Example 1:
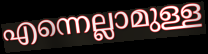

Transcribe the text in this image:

എന്നെല്ലാമുള്ള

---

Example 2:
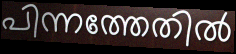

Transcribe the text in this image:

പിന്നത്തേതിൽ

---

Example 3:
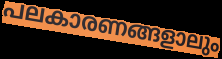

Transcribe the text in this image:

പലകാരണങ്ങളാലും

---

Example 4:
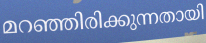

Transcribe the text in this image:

മറഞ്ഞിരിക്കുന്നതായി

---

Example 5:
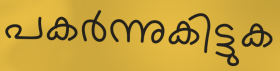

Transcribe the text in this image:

പകർന്നുകിട്ടുക